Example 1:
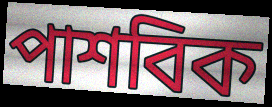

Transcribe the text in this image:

পাশবিক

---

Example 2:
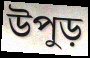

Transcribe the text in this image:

উপুড়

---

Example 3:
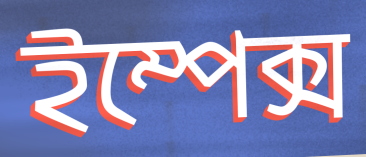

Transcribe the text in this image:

ইম্পেক্স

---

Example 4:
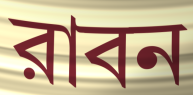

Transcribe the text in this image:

রাবন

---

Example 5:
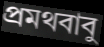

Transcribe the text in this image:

প্রমথবাবু